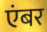
एंबर